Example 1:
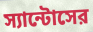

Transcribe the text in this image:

স্যান্টোসের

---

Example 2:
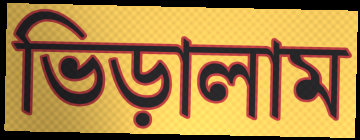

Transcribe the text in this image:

ভিড়ালাম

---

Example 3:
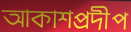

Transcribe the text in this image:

আকাশপ্রদীপ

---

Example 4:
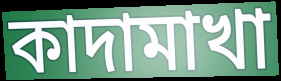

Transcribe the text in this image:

কাদামাখা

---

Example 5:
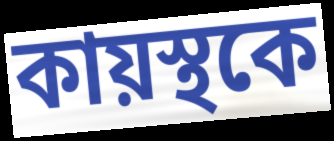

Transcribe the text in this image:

কায়স্থকে